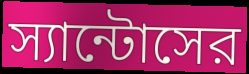
স্যান্টোসের